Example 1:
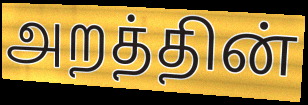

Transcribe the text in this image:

அறத்தின்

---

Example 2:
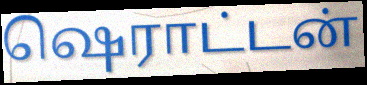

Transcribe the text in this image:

ஷெராட்டன்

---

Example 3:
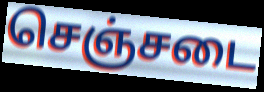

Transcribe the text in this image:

செஞ்சடை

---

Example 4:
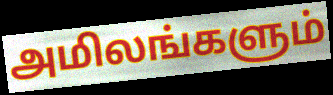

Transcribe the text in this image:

அமிலங்களும்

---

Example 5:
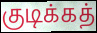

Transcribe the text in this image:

குடிக்கத்